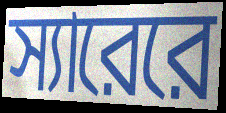
স্যারেরে